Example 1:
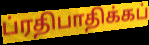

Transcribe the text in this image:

ப்ரதிபாதிக்கப்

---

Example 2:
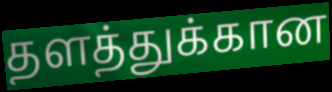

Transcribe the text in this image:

தளத்துக்கான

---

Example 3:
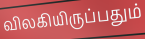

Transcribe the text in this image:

விலகியிருப்பதும்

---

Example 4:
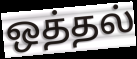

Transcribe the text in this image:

ஒத்தல்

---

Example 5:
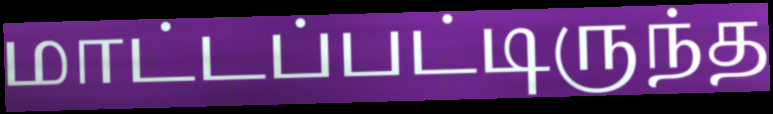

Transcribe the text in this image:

மாட்டப்பட்டிருந்த